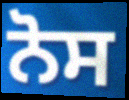
ਨੋਸ